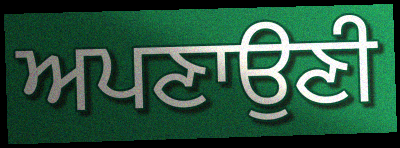
ਅਪਣਾਉਣੀ